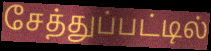
சேத்துப்பட்டில்